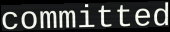
committed